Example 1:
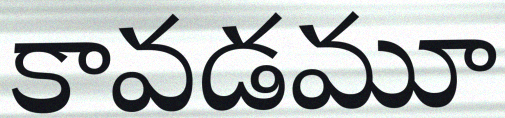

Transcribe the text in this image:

కావడమూ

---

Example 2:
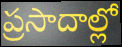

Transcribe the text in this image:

ప్రసాదాల్లో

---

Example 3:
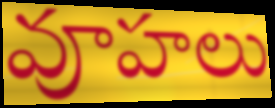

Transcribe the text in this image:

వూహలు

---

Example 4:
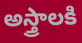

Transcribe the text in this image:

అస్త్రాలకి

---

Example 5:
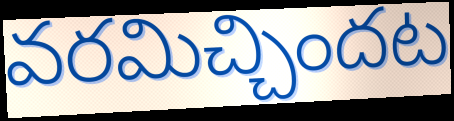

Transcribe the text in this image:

వరమిచ్చిందట